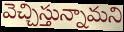
వెచ్చిస్తున్నామని